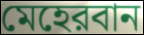
মেহেরবান